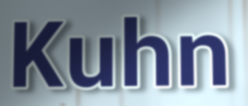
Kuhn